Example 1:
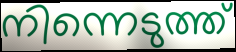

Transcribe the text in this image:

നിന്നെടുത്ത്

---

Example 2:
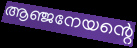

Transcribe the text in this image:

ആഞ്ജനേയന്റെ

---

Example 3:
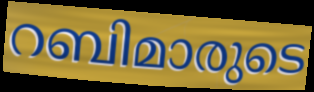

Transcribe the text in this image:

റബിമാരുടെ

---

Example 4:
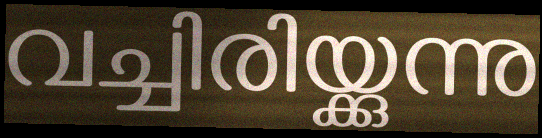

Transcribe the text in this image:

വച്ചിരിയ്ക്കുന്നു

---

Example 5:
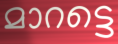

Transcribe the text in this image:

മാറട്ടെ